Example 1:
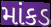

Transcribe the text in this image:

માંકડ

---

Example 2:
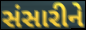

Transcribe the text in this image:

સંસારીને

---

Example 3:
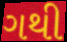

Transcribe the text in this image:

ગથી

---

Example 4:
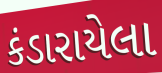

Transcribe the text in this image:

કંડારાયેલા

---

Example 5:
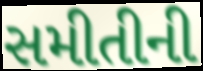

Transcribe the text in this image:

સમીતીની